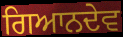
ਗਿਆਨਦੇਵ